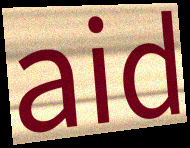
aid